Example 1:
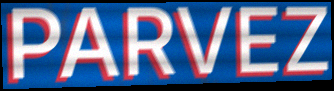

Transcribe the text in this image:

PARVEZ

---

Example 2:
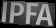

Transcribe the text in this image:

IPFA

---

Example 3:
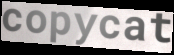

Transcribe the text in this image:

copycat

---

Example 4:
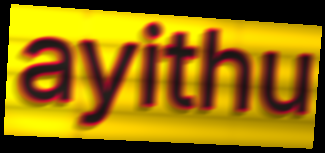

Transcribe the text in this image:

ayithu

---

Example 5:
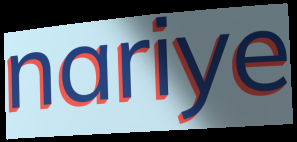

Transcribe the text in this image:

nariye